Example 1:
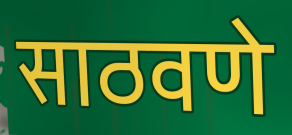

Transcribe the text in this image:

साठवणे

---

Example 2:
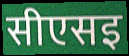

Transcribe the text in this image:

सीएसइ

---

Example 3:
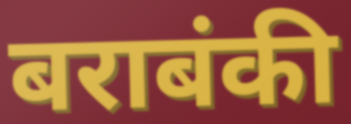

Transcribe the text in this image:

बराबंकी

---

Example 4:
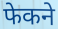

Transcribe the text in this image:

फेकने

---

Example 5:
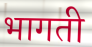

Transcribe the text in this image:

भागती